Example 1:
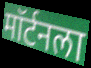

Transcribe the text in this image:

मॉर्टनला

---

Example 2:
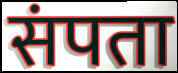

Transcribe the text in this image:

संपता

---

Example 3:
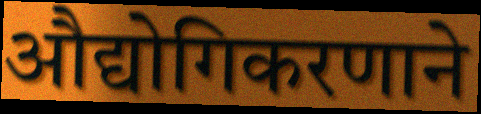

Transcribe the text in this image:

औद्योगिकरणाने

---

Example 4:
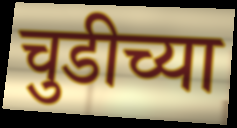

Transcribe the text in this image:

चुडीच्या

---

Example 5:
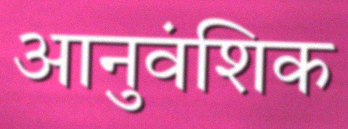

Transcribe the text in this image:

आनुवंशिक